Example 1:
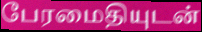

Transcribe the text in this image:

பேரமைதியுடன்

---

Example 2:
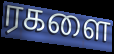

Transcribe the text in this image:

ரகளை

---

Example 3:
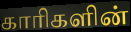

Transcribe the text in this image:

காரிகளின்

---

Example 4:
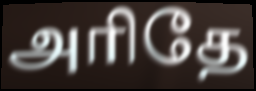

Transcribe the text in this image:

அரிதே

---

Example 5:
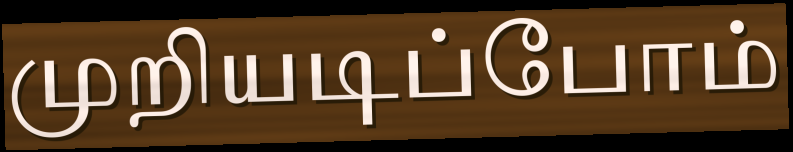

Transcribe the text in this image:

முறியடிப்போம்